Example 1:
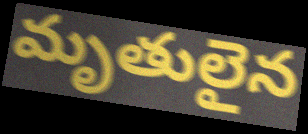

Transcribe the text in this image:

మృతులైన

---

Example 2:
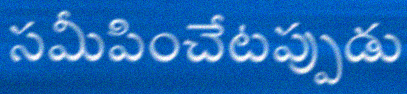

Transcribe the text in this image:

సమీపించేటప్పుడు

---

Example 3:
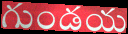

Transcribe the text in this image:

గుండయ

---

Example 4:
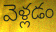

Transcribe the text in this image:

వెళ్లడం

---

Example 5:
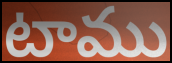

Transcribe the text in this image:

టాము